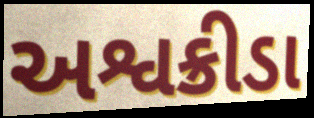
અશ્વક્રીડા